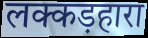
लक्कड़हारा